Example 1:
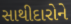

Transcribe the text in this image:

સાથીદારોને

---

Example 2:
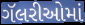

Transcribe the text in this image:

ગૅલરીઓમાં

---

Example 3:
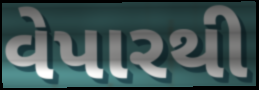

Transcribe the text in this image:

વેપારથી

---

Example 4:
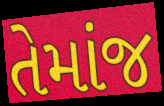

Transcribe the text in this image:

તેમાંજ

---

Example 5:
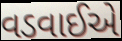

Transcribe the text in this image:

વડવાઈએ